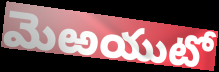
మెఱయుటో